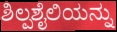
ಶಿಲ್ಪಶೈಲಿಯನ್ನು